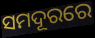
ସମଦୂରରେ